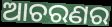
ଆଚରଣର